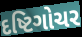
દષ્ટિગોચર